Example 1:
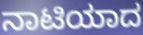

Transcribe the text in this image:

ನಾಟಿಯಾದ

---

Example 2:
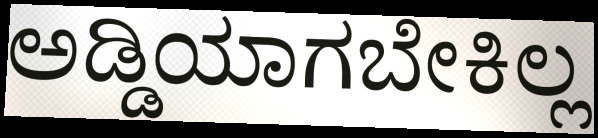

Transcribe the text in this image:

ಅಡ್ಡಿಯಾಗಬೇಕಿಲ್ಲ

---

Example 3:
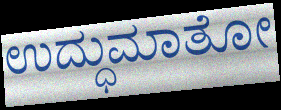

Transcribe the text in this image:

ಉದ್ಧುಮಾತೋ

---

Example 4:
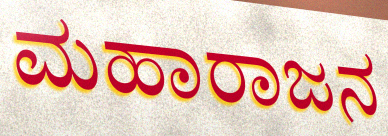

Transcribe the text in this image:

ಮಹಾರಾಜನ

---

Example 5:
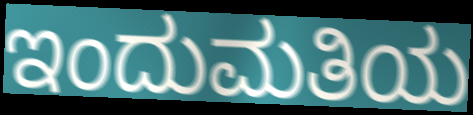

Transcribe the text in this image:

ಇಂದುಮತಿಯ